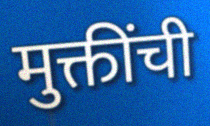
मुक्तींची